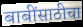
बाबींसाठीचा